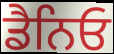
ਡੈਨਿਓ